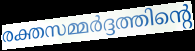
രക്തസമ്മർദ്ദത്തിന്റെ